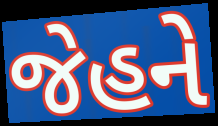
જેહને